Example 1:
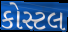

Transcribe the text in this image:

કોસ્ટલ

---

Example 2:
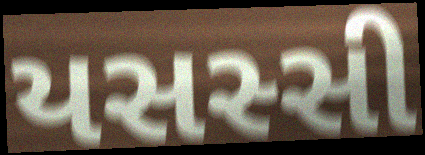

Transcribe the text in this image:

યસસ્સી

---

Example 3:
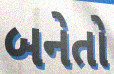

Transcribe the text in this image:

બનેતો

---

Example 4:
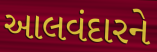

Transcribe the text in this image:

આલવંદારને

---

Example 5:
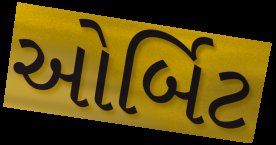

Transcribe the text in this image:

ઓર્બિટ